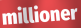
millioner